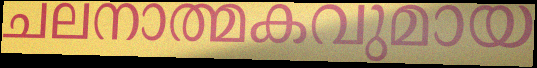
ചലനാത്മകവുമായ